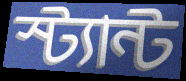
স্ট্যান্ট